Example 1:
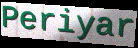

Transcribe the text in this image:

Periyar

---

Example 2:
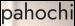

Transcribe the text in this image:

pahochi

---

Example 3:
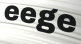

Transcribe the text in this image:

eege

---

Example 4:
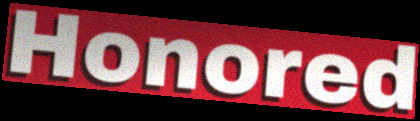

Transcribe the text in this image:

Honored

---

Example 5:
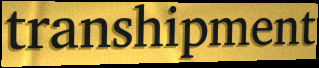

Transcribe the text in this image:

transhipment